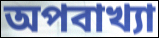
অপবাখ্যা